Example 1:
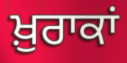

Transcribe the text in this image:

ਖ਼ੁਰਾਕਾਂ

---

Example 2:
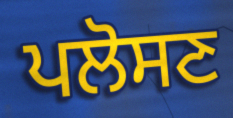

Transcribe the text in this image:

ਪਲੋਸਣ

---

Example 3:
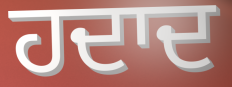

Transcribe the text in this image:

ਹਦਾਦ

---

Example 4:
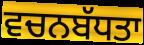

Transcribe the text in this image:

ਵਚਨਬੱਧਤਾ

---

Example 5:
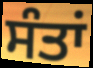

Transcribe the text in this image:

ਸੰਤਾਂ